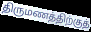
திருமணத்திற்குத்